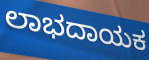
ಲಾಭದಾಯಕ